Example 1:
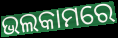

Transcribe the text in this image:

ଭଲକାମରେ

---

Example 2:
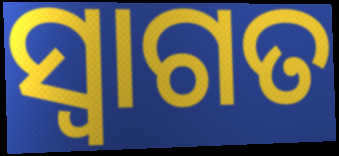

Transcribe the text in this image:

ସ୍ବାଗତ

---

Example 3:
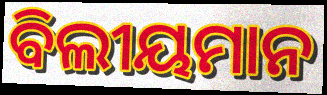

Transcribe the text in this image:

ବିଲୀୟମାନ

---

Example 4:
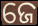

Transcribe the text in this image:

ଜେ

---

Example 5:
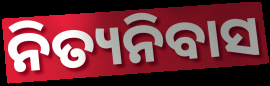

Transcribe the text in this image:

ନିତ୍ୟନିବାସ